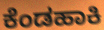
ಕೆಂಡಹಾಕಿ